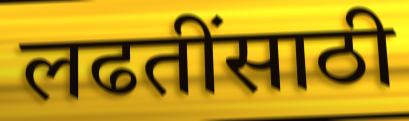
लढतींसाठी